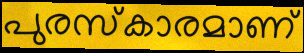
പുരസ്കാരമാണ്